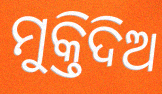
ମୁକ୍ତିଦିଅ